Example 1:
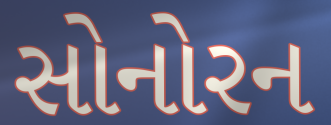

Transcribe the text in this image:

સોનોરન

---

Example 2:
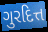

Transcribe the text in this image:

ગુરદિત્ત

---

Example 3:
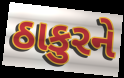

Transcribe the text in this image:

ઠાકુરને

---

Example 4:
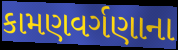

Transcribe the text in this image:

કામણવર્ગણાના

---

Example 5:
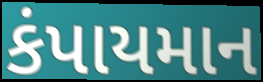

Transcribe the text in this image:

કંપાયમાન